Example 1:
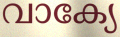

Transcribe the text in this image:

വാക്യേ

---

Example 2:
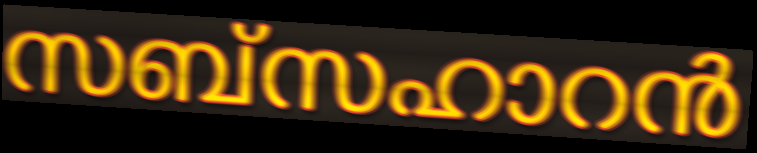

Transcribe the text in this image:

സബ്സഹാറൻ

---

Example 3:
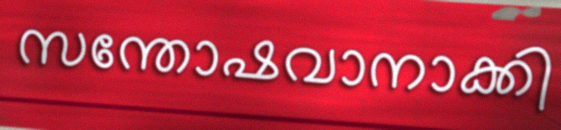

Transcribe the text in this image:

സന്തോഷവാനാക്കി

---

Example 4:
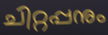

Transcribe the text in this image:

ചിറ്റപ്പനും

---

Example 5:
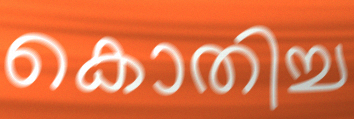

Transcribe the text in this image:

കൊതിച്ച